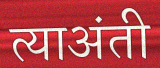
त्याअंती